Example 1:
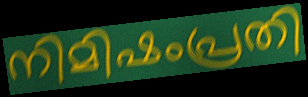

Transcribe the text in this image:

നിമിഷംപ്രതി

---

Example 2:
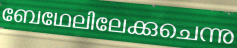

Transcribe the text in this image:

ബേഥേലിലേക്കുചെന്നു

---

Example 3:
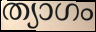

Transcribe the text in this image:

ത്യാഗം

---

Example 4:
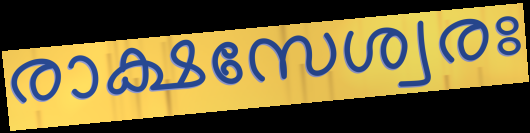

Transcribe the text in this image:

രാക്ഷസേശ്വരഃ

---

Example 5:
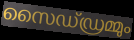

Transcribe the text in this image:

സൈഡ്ഡ്രമ്മും